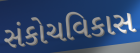
સંકોચવિકાસ